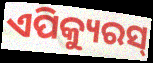
ଏପିକ୍ୟୁରସ୍